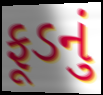
ફૂડનું